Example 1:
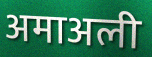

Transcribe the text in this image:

अमाअली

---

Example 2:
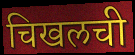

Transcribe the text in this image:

चिखलची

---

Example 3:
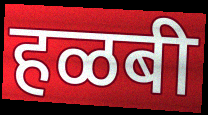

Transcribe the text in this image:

हळबी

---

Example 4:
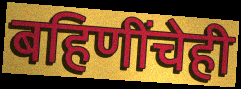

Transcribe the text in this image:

बहिणींचेही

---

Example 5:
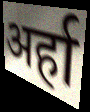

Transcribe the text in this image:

अर्हा